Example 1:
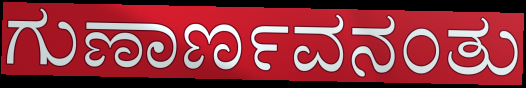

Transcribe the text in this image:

ಗುಣಾರ್ಣವನಂತು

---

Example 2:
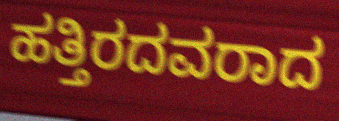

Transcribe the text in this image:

ಹತ್ತಿರದವರಾದ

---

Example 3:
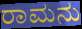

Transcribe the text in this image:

ರಾಮನು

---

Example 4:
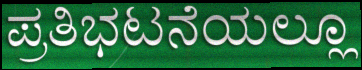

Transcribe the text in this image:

ಪ್ರತಿಭಟನೆಯಲ್ಲೂ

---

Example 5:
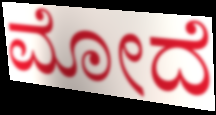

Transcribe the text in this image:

ಮೋದೆ